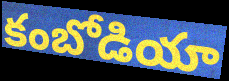
కంబోడియా